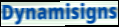
Dynamisigns